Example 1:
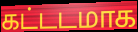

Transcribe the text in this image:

கட்டடமாக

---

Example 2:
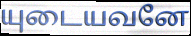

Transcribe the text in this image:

யுடையவனே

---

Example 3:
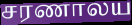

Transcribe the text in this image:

சரணாலய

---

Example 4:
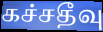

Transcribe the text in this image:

கச்சதீவு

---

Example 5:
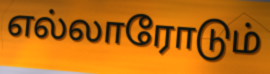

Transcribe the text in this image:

எல்லாரோடும்